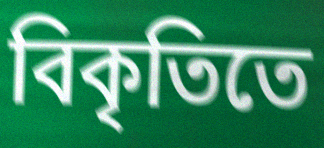
বিকৃতিতে